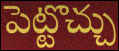
పెట్టొచ్చు